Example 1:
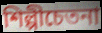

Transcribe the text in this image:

শিল্পীচেতনা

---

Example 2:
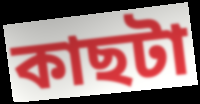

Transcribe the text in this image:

কাছটা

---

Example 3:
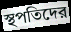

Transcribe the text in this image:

স্থপতিদের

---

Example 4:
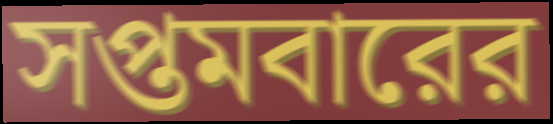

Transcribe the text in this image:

সপ্তমবারের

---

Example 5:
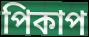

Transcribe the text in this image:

পিকাপ